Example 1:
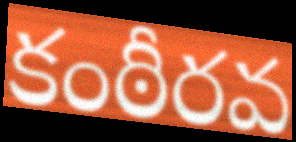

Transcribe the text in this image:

కంఠీరవ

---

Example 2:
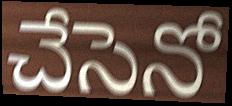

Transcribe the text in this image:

చేసెనో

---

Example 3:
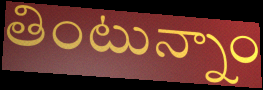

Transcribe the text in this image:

తింటున్నాం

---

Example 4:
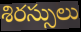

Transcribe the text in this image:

శిరస్సులు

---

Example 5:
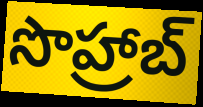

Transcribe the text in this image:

సొహ్రాబ్